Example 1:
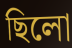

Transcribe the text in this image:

ছিলো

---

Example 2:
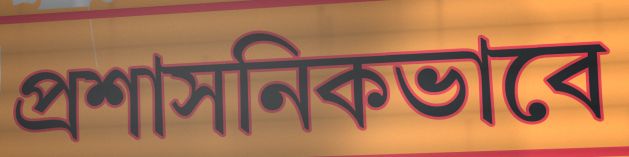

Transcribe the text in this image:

প্রশাসনিকভাবে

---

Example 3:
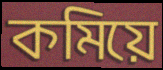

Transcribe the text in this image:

কমিয়ে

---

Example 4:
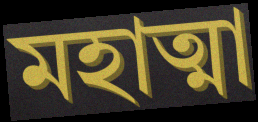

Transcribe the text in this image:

মহাত্মা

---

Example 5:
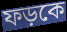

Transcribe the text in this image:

ফড়কে